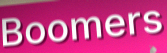
Boomers